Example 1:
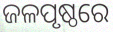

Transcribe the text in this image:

ଜଳପୃଷ୍ଠରେ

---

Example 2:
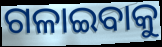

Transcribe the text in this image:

ଗଳାଇବାକୁ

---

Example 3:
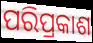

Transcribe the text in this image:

ପରିପ୍ରକାଶ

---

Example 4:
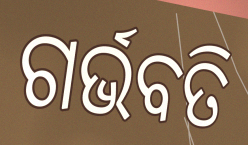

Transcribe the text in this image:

ଗର୍ଭବତି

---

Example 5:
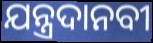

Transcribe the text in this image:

ଯନ୍ତ୍ରଦାନବୀ